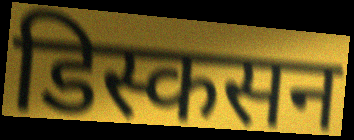
डिस्कसन